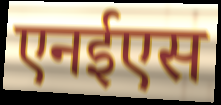
एनईएस